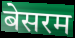
बेसरम